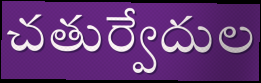
చతుర్వేదుల